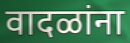
वादळांना